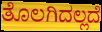
ತೊಲಗಿದಲ್ಲದೆ